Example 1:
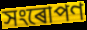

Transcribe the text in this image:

সংৰোপণ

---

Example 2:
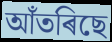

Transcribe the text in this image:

আঁতৰিছে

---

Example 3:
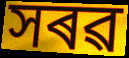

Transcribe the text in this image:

সৰৱ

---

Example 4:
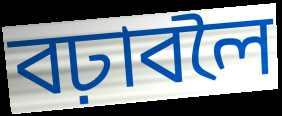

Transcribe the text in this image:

বঢ়াবলৈ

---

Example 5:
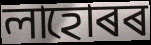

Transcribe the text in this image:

লাহোৰৰ